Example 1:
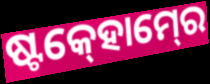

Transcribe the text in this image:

ଷ୍ଟକ୍‍ହୋମ୍‍ରେ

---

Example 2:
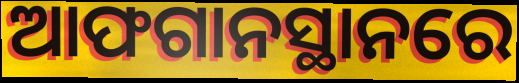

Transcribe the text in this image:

ଆଫଗାନସ୍ଥାନରେ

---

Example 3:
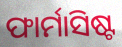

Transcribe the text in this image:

ଫାର୍ମାସିଷ୍ଟ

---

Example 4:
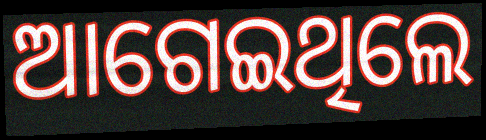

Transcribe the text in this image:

ଆଗେଇଥିଲେ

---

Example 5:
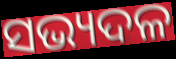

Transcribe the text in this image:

ସଭ୍ୟଦଳ